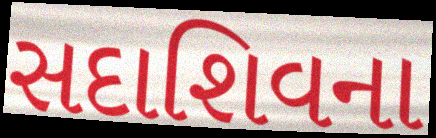
સદાશિવના